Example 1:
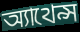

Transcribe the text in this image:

অ্যাথেন্স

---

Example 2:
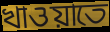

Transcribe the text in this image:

খাওয়াতে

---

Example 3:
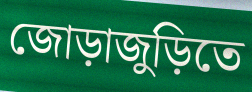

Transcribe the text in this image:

জোড়াজুড়িতে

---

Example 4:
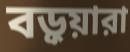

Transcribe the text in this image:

বড়ুয়ারা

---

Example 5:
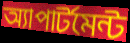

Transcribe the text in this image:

অ্যাপার্টমেন্ট